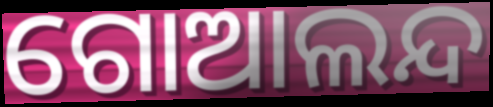
ଗୋଆଲନ୍ଦ